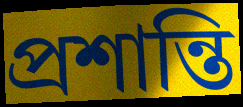
প্ৰশান্তি